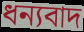
ধন্যবাদ